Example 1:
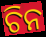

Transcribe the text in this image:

ଚିନ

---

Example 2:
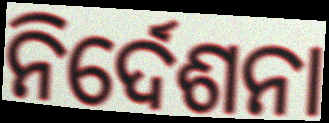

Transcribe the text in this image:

ନିର୍ଦେଶନା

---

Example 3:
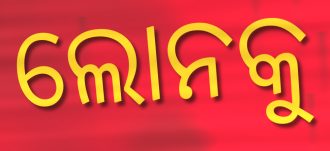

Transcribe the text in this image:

ଲୋନକୁ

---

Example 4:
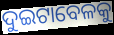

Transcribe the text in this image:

ଦୁଇଟାବେଳକୁ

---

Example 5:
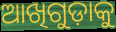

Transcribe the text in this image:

ଆଖିଗୁଡ଼ାକୁ